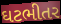
ઘટભીતર